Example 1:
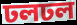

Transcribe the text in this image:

ঢলঢল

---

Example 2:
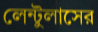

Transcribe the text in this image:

লেন্টুলাসের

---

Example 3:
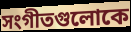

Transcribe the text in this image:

সংগীতগুলোকে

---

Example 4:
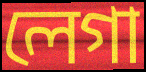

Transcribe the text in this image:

লেগা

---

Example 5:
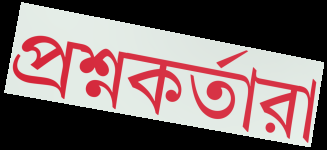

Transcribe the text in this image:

প্রশ্নকর্তারা